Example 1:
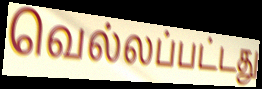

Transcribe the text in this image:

வெல்லப்பட்டது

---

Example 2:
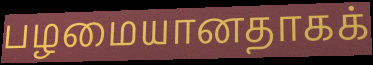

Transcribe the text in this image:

பழமையானதாகக்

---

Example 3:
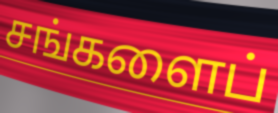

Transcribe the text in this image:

சங்களைப்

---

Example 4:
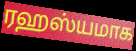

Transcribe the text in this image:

ரஹஸ்யமாக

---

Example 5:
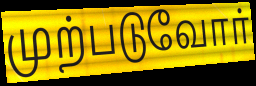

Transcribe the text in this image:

முற்படுவோர்